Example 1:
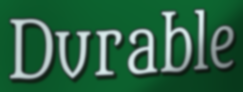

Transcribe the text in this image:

Durable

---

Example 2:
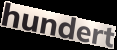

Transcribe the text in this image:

hundert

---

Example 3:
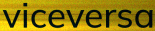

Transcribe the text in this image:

viceversa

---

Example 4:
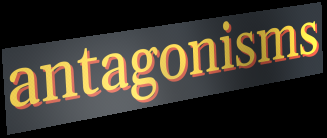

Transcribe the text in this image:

antagonisms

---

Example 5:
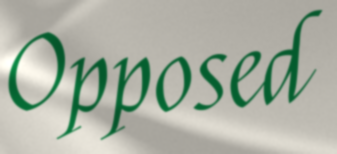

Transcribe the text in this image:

Opposed